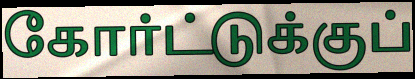
கோர்ட்டுக்குப்